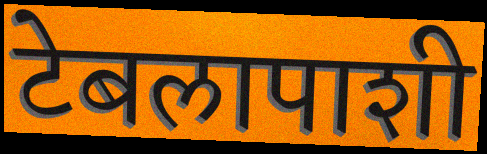
टेबलापाशी